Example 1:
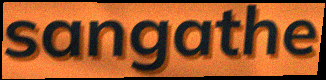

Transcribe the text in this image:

sangathe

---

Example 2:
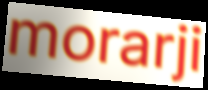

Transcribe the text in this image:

morarji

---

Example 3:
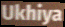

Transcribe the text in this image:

Ukhiya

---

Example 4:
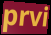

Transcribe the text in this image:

prvi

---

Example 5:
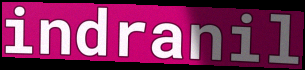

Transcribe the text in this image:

indranil